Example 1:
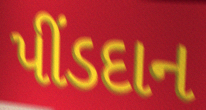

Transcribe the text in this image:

પીંડદાન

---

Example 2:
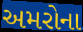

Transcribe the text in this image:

અમરોના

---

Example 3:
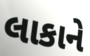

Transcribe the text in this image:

લાકાને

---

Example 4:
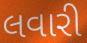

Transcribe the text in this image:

લવારી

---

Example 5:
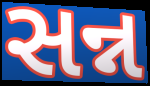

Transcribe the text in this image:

સન્ન